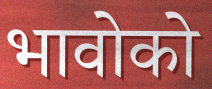
भावोको